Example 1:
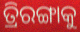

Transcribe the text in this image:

ତ୍ରିରଙ୍ଗାକୁ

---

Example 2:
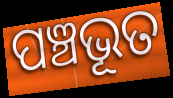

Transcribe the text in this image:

ପଞ୍ଚଭୂତ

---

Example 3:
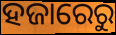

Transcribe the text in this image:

ହଜାରେରୁ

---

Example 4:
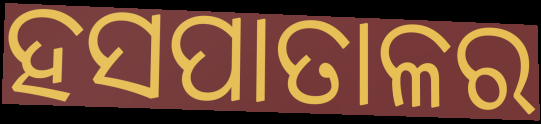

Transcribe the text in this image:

ହସପାତାଳର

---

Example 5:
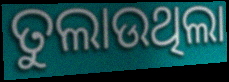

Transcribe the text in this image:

ତୁଲାଉଥିଲା